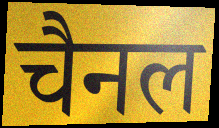
चैनल